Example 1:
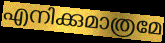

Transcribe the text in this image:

എനിക്കുമാത്രമേ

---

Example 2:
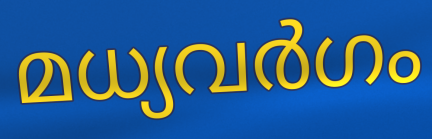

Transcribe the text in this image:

മധ്യവർഗം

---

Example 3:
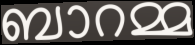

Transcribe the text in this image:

ബാറമ്മ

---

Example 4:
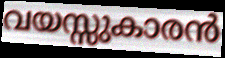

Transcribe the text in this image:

വയസ്സുകാരൻ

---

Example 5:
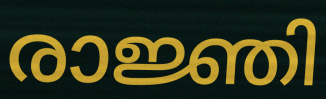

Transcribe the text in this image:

രാജ്ഞി